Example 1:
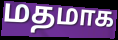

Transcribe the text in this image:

மதமாக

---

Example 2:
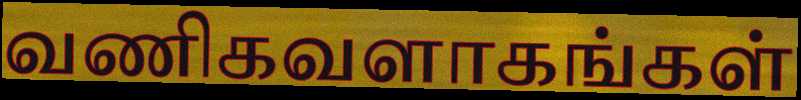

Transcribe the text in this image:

வணிகவளாகங்கள்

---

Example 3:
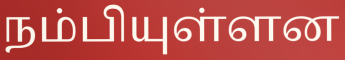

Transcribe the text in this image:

நம்பியுள்ளன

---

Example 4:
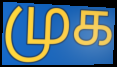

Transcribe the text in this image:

முக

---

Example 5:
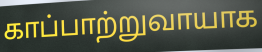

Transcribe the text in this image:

காப்பாற்றுவாயாக